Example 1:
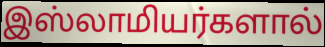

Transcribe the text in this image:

இஸ்லாமியர்களால்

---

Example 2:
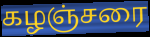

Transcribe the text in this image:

கழஞ்சரை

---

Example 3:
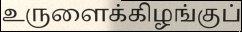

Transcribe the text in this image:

உருளைக்கிழங்குப்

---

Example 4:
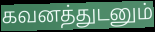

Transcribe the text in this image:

கவனத்துடனும்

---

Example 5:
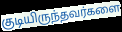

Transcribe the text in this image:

குடியிருந்தவர்களை